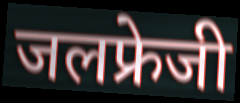
जलफ्रेजी